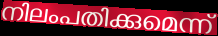
നിലംപതിക്കുമെന്ന്